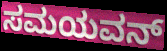
ಸಮಯವನ್